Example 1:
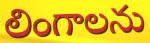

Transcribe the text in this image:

లింగాలను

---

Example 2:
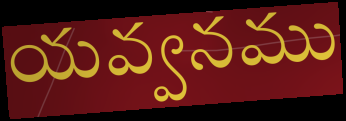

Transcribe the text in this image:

యవ్వనము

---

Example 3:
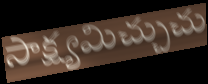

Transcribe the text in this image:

సాక్ష్యమిచ్చుచు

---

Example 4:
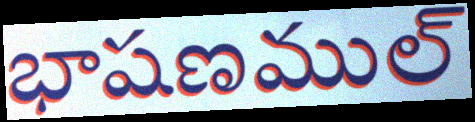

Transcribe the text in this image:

భాషణముల్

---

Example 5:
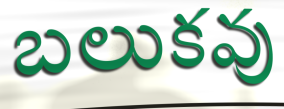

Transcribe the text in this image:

బలుకవు